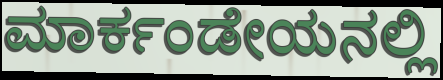
ಮಾರ್ಕಂಡೇಯನಲ್ಲಿ